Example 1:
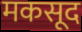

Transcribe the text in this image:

मकसूद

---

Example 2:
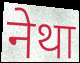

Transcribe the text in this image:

नेथा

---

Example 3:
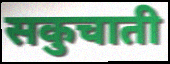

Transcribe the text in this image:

सकुचाती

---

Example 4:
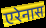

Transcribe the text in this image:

एरेनास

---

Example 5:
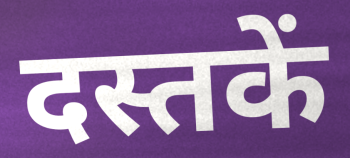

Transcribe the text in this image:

दस्तकें